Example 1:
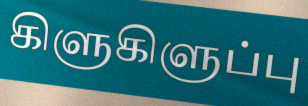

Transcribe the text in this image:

கிளுகிளுப்பு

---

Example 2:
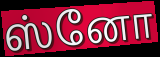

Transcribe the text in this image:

ஸ்னோ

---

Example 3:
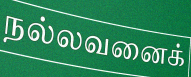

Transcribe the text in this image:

நல்லவனைக்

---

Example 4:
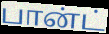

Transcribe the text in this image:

பான்ட்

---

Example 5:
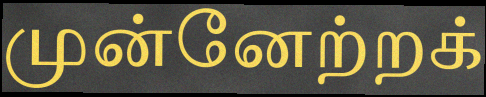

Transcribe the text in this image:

முன்னேற்றக்